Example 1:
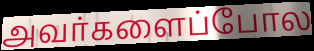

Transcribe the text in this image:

அவர்களைப்போல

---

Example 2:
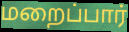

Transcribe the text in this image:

மறைப்பார்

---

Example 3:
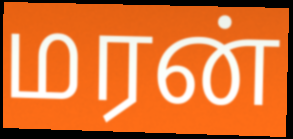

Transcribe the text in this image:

மரன்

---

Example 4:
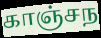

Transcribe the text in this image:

காஞ்சந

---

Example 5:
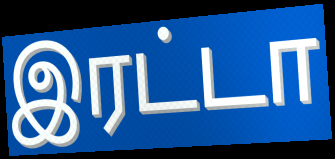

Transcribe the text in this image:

இரட்டா